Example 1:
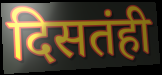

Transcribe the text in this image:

दिसतंही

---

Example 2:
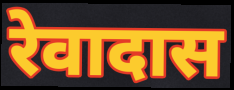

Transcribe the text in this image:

रेवादास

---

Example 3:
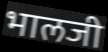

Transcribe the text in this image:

भालजी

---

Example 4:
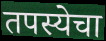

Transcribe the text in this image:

तपस्येचा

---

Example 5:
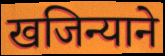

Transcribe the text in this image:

खजिन्याने